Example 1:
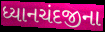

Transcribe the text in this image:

ધ્યાનચંદજીના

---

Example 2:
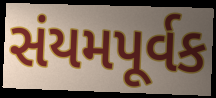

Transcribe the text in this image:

સંયમપૂર્વક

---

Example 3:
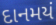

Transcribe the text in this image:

દાનમયં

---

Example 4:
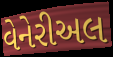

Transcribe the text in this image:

વેનેરીઅલ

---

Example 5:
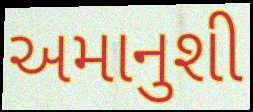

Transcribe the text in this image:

અમાનુશી